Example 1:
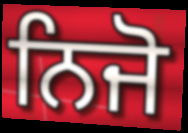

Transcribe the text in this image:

ਨਿਜੋ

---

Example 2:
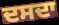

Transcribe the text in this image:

ਦਸਦਾ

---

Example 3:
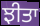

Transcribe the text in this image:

ਝੀਤਾ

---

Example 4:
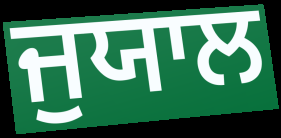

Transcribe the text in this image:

ਜੁਯਾਲ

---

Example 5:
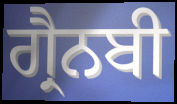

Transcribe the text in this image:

ਗ੍ਰੈਨਬੀ